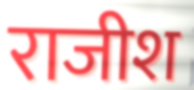
राजीश